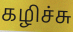
கழிச்சு